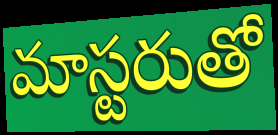
మాస్టరుతో